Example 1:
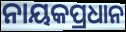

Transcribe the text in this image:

ନାୟକପ୍ରଧାନ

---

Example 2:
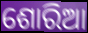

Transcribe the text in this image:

ଶୋରିଆ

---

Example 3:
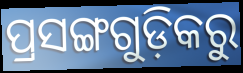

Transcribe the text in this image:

ପ୍ରସଙ୍ଗଗୁଡ଼ିକରୁ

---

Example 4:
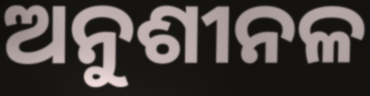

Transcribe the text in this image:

ଅନୁଶୀନଳ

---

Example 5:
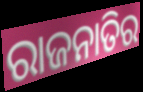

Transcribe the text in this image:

ରାଜନାତିର